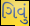
ગિવું